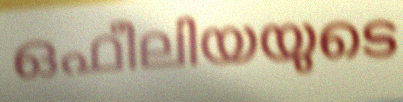
ഒഫീലിയയുടെ